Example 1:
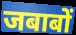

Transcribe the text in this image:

जबाबों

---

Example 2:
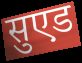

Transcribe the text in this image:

सुएड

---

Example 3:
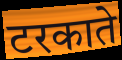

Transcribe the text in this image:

टरकाते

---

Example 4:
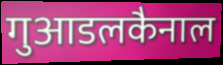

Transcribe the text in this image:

गुआडलकैनाल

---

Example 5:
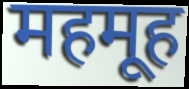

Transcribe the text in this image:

महमूह